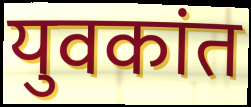
युवकांत